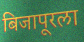
बिजापूरला